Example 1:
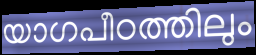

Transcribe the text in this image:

യാഗപീഠത്തിലും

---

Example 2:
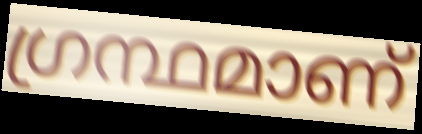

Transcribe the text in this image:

ഗ്രന്ഥമാണ്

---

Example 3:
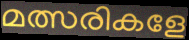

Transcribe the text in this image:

മത്സരികളേ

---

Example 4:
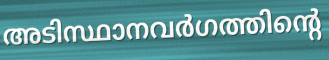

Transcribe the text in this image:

അടിസ്ഥാനവർഗത്തിന്റെ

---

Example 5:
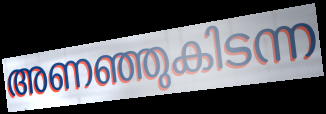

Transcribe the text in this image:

അണഞ്ഞുകിടന്ന